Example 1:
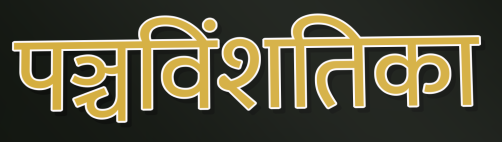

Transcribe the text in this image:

पञ्चविंशतिका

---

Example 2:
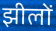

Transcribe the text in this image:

झीलों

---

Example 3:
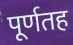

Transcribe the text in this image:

पूर्णतह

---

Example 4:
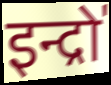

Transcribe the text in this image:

इन्द्रो॑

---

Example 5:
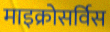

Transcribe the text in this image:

माइक्रोसर्विस